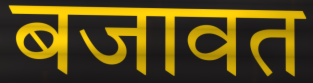
बजावत